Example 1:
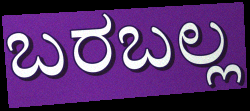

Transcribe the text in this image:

ಬರಬಲ್ಲ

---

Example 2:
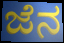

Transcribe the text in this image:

ಜೆನ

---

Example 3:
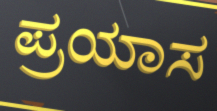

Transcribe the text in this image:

ಪ್ರಯಾಸ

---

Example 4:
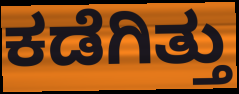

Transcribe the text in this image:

ಕಡೆಗಿತ್ತು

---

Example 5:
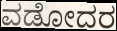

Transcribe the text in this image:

ವಡೋದರ